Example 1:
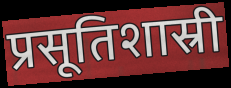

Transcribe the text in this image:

प्रसूतिशास्री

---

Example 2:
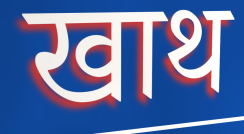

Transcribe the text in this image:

खाथ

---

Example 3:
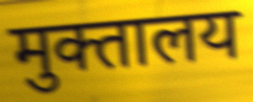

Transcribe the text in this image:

मुक्तालय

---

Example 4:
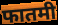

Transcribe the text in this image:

फातमी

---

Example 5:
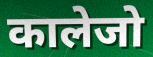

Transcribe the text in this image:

कालेजो